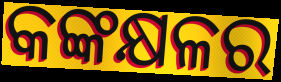
କଙ୍କକ୍ଷଳର